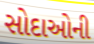
સોદાઓની